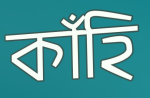
কাঁহি